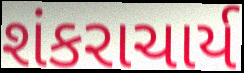
શંકરાચાર્ય